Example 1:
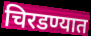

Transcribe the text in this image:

चिरडण्यात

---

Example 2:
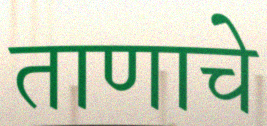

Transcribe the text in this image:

ताणाचे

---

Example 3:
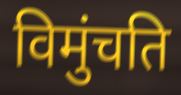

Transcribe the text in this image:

विमुंचति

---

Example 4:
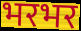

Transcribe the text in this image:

भरभर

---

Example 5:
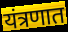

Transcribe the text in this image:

यंत्रणात